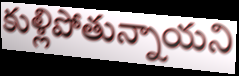
కుళ్లిపోతున్నాయని